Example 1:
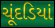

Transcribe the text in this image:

ચૂંદડિયાં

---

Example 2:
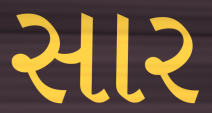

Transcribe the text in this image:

સાર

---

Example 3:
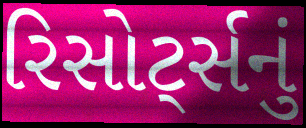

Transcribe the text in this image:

રિસોર્ટ્સનું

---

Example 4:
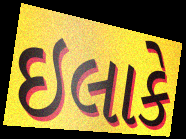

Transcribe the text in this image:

ઇલાકે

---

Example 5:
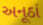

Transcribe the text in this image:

અનૂઠાં